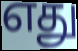
எது